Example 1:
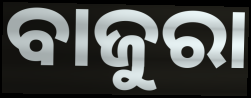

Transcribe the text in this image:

ବାଜୁରା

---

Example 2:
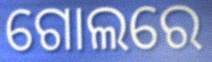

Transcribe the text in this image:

ଗୋଲରେ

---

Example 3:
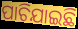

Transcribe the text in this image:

ପାଚିଯାଇଛି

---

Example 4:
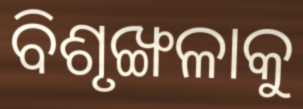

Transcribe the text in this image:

ବିଶୃଙ୍ଖଳାକୁ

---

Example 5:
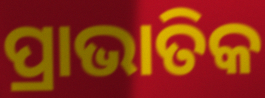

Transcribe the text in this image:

ପ୍ରାଭାତିକ